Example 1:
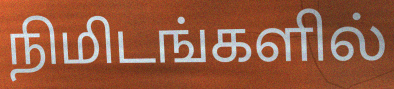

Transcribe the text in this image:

நிமிடங்களில்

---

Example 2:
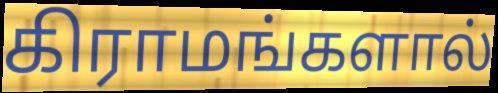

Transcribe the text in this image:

கிராமங்களால்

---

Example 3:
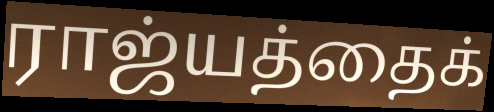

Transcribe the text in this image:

ராஜ்யத்தைக்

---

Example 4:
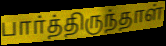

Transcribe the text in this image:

பார்த்திருந்தாள்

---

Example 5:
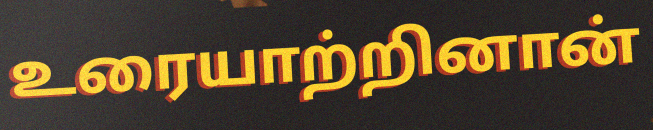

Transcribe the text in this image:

உரையாற்றினான்